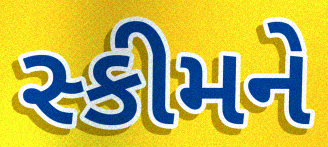
સ્કીમને